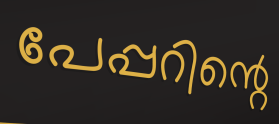
പേപ്പറിന്റെ